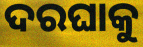
ଦରଘାକୁ